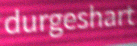
durgeshart